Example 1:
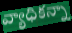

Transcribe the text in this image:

వ్యాధికన్నా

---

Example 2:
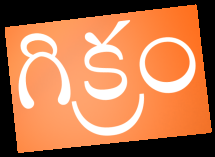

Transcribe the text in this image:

గిక్రం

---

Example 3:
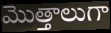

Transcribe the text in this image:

మొత్తాలుగా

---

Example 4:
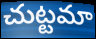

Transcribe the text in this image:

చుట్టమా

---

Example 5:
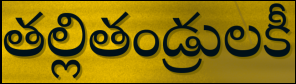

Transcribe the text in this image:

తల్లితండ్రులకీ